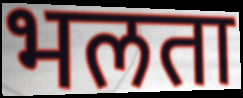
भलता